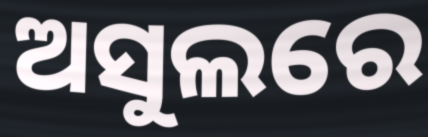
ଅସୁଲରେ